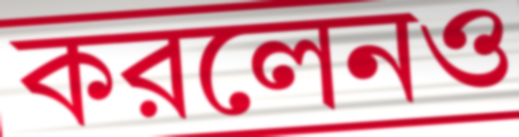
করলেনও